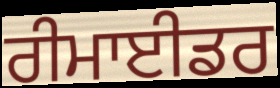
ਰੀਮਾਈਡਰ